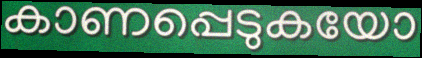
കാണപ്പെടുകയോ